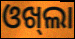
ଓଖ୍‌ଲା